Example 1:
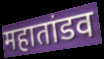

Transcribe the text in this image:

महातांडव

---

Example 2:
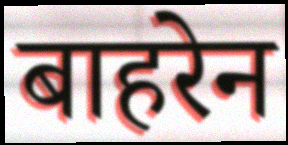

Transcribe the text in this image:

बाहरेन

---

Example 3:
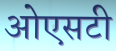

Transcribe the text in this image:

ओएसटी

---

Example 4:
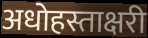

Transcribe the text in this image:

अधोहस्ताक्षरी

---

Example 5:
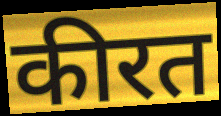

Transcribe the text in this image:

कीरत